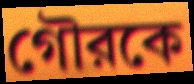
গৌরকে